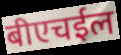
बीएचईल